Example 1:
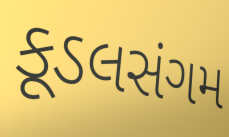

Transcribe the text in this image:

કૂડલસંગમ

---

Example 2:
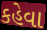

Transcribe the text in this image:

કહેવા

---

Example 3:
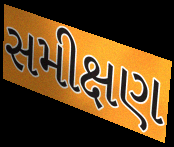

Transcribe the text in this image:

સમીક્ષણ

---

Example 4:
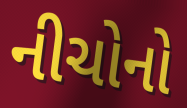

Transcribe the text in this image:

નીચોનો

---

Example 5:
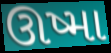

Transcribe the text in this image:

ઊષ્મા